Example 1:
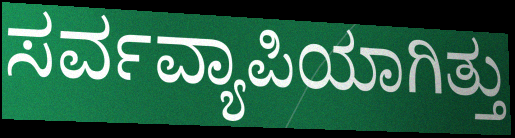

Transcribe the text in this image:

ಸರ್ವವ್ಯಾಪಿಯಾಗಿತ್ತು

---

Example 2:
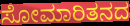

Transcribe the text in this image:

ಸೋಮಾರಿತನದ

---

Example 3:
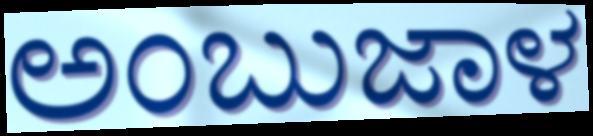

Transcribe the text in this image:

ಅಂಬುಜಾಳ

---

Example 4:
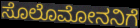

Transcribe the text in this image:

ಸೊಲೊಮೋನನಿಗೆ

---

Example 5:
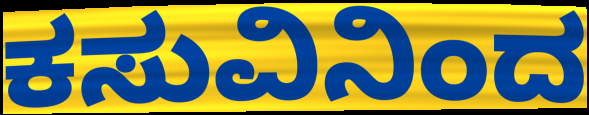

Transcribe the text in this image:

ಕಸುವಿನಿಂದ